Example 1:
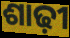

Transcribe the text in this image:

ଶାଢ଼ୀ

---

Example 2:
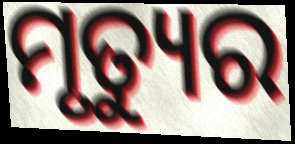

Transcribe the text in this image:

ମୃତ୍ୟୁର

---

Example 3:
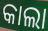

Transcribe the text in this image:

କାଲା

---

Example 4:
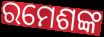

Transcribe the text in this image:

ରମେଶଙ୍କ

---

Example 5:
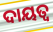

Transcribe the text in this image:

ଦାୟତ୍ବ